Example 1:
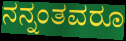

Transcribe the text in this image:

ನನ್ನಂತವರೂ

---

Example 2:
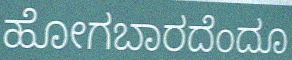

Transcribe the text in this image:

ಹೋಗಬಾರದೆಂದೂ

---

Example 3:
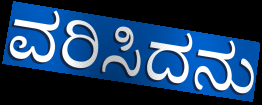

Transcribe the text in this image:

ವರಿಸಿದನು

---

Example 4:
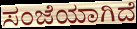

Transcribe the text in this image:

ಸಂಜೆಯಾಗಿದೆ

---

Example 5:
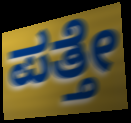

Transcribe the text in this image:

ಪತ್ತೇ